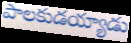
పాలకుడయ్యాడు